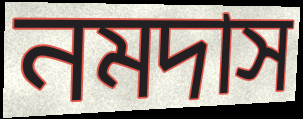
নমদাস